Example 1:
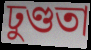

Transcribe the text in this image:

ঢুণ্ডতা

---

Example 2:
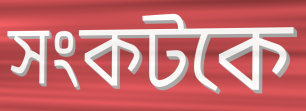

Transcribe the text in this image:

সংকটকে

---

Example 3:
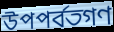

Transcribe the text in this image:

উপপর্বতগণ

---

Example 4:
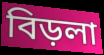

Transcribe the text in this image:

বিড়লা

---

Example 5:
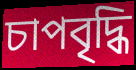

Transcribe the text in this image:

চাপবৃদ্ধি